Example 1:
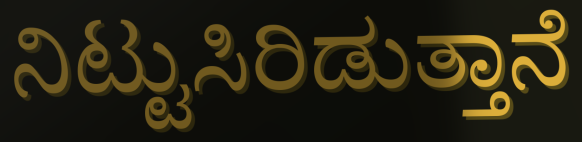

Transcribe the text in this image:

ನಿಟ್ಟುಸಿರಿಡುತ್ತಾನೆ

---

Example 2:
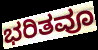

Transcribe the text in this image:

ಭರಿತವೂ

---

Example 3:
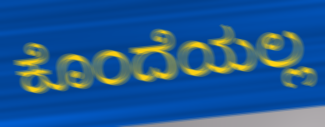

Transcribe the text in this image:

ಕೊಂದೆಯಲ್ಲ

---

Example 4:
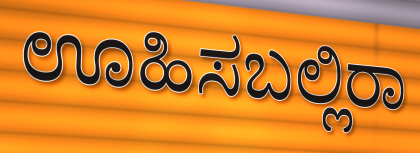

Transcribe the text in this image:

ಊಹಿಸಬಲ್ಲಿರಾ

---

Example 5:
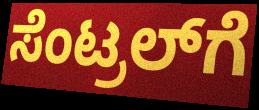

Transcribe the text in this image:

ಸೆಂಟ್ರಲ್‌ಗೆ